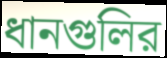
ধানগুলির